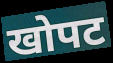
खोपट